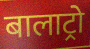
बालाट्रो